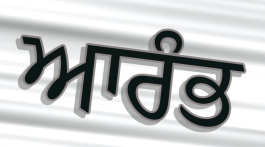
ਆਰੰਭ